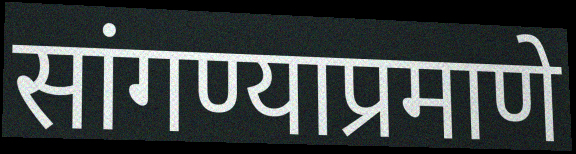
सांगण्याप्रमाणे